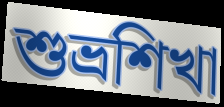
শুভ্রশিখা